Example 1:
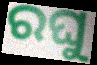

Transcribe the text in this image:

ରଘୁ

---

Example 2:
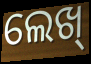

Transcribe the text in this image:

ଲେଖ୍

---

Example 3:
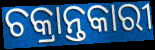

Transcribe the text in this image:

ଚକ୍ରାନ୍ତକାରୀ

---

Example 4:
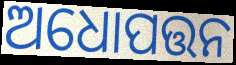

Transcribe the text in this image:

ଅଧୋପତ୍ତନ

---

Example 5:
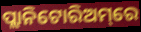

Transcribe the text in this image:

ପ୍ଲାନିଟୋରିଅମ୍‌ରେ